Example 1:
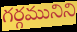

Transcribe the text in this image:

గర్గమునిని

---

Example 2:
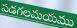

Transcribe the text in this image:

పడగలమయము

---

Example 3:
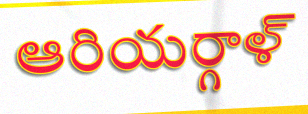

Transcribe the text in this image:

ఆరియర్గాళ్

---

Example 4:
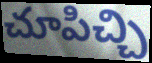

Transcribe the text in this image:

చూపిచ్చి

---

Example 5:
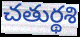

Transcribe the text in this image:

చతుర్థశి